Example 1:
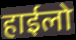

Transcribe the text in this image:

हाईलो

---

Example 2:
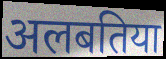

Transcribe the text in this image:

अलबतिया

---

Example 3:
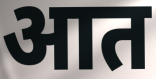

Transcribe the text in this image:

आत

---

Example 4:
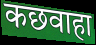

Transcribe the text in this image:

कछवाहा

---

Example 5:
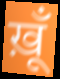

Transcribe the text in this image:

ख़ूँ